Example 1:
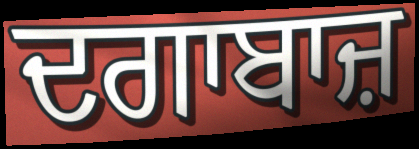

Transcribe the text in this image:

ਦਗਾਬਾਜ਼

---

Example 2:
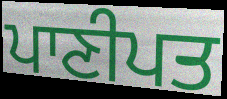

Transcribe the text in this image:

ਪਾਣੀਪਤ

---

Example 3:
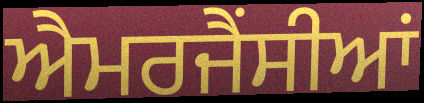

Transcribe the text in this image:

ਐਮਰਜੈਂਸੀਆਂ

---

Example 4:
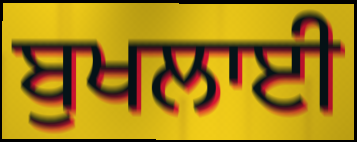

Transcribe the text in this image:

ਬੁਖਲਾਈ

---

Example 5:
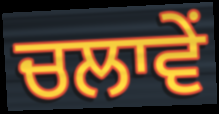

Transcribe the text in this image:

ਚਲਾਵੇਂ